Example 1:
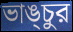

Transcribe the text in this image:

ভাঙ্চুর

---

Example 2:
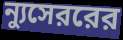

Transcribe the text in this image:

ন্যুসেররের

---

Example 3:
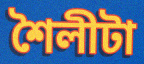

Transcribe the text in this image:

শৈলীটা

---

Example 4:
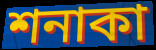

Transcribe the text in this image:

শনাকা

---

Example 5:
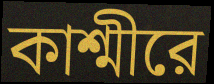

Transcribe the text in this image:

কাশ্মীরে